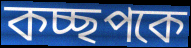
কচ্ছপকে